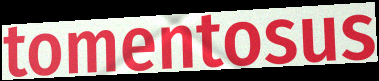
tomentosus